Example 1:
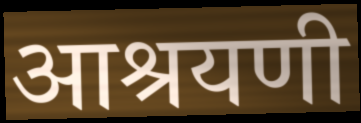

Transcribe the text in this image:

आश्रयणी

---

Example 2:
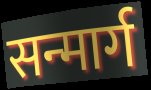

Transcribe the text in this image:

सन्‍मार्ग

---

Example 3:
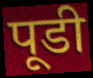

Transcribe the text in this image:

पूडी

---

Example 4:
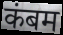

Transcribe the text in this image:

कंबम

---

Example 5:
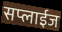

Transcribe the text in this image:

सप्लाईज